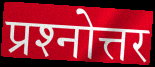
प्रश्‍नोत्तर